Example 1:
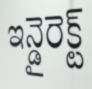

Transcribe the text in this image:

ఇన్డైరెక్ట్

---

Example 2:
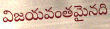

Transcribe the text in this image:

విజయవంతమైనది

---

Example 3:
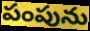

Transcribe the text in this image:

పంపును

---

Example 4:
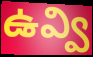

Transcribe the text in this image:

ఉవ్వి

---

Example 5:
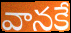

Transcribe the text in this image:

వానకే